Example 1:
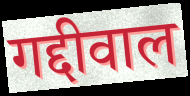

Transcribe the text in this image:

गद्दीवाल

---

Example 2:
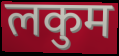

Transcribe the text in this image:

लकुम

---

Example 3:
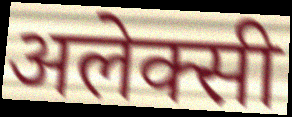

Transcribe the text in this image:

अलेक्सी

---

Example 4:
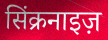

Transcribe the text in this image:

सिंक्रनाइज़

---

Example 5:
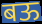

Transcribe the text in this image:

बऊ